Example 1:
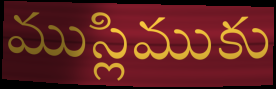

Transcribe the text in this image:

ముస్లిముకు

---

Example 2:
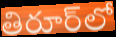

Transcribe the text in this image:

తిరూర్‌లో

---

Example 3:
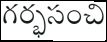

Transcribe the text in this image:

గర్భసంచి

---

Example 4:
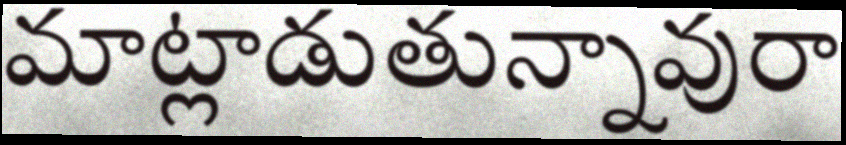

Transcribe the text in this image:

మాట్లాడుతున్నావురా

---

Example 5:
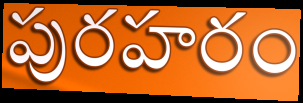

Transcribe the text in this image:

పురహరం